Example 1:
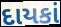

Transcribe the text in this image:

દાયકાં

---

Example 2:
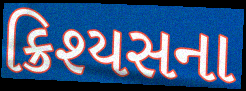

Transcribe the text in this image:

ક્રિશ્યસના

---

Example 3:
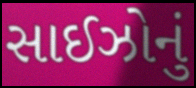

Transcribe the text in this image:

સાઈઝોનું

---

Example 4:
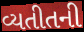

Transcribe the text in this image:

વ્યતીતની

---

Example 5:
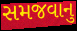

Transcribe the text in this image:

સમજવાનુ